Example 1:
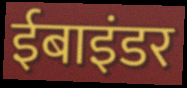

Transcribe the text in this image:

ईबाइंडर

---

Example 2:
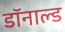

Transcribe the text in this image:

डॉनाल्ड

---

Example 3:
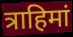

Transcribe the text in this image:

त्राहिमां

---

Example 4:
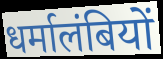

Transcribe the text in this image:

धर्मालंबियों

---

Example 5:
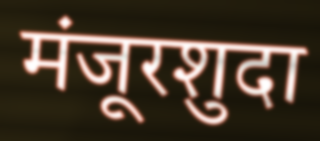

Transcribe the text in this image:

मंजूरशुदा